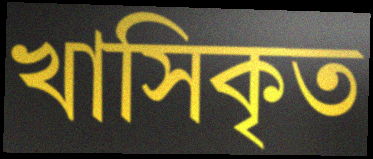
খাসিকৃত